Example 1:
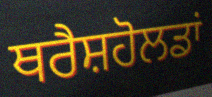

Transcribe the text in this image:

ਥਰੈਸ਼ਹੋਲਡਾਂ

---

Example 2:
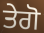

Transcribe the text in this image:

ਤੇਗੋ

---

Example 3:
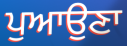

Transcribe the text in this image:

ਪੁਆਉਣਾ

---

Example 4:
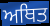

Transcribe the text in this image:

ਅਥਿਤ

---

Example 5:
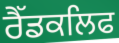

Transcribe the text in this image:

ਰੈੱਡਕਲਿਫ